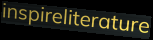
inspireliterature